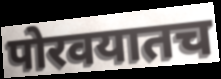
पोरवयातच